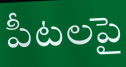
పీటలపై